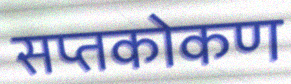
सप्तकोकण